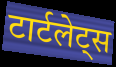
टार्टलेट्स